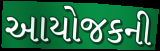
આયોજકની